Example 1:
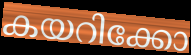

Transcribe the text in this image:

കയറിക്കോ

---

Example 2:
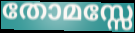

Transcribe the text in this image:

തോമസ്സേ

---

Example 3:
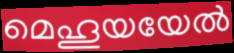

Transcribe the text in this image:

മെഹൂയയേൽ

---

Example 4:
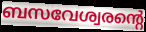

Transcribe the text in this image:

ബസവേശ്വരന്റെ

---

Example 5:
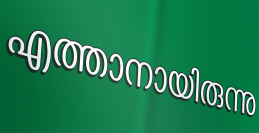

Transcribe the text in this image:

എത്താനായിരുന്നു